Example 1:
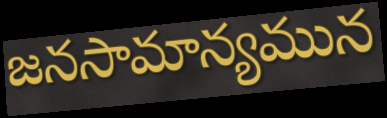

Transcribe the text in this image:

జనసామాన్యమున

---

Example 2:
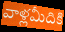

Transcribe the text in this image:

వాళ్లమీదికి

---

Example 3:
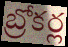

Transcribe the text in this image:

బ్రోకర్ల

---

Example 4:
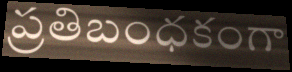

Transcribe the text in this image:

ప్రతిబంధకంగా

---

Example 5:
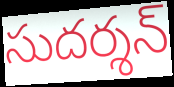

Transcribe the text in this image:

సుదర్శన్